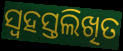
ସ୍ୱହସ୍ତଲିଖିତ